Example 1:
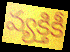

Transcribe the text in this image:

వ్యక్తికీ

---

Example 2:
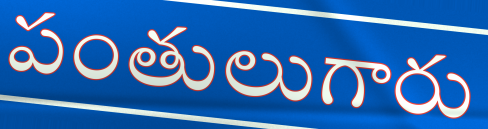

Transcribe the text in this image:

పంతులుగారు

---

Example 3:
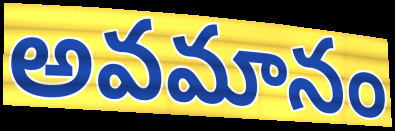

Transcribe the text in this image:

అవమానం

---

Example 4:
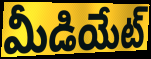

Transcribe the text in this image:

మీడియేట్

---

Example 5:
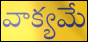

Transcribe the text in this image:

వాక్యమే